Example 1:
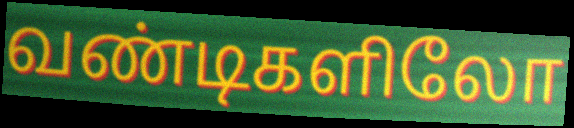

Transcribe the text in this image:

வண்டிகளிலோ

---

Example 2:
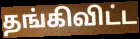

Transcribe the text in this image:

தங்கிவிட்ட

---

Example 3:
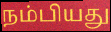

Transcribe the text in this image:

நம்பியது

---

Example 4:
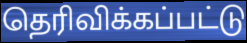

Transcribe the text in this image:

தெரிவிக்கப்பட்டு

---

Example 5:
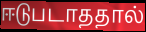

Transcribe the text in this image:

ஈடுபடாததால்